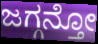
ಜಗ್ಗನ್ತೋ